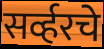
सर्व्हरचे